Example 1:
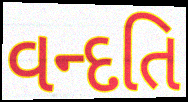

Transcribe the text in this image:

વન્દતિ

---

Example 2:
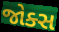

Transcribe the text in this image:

જોક્સ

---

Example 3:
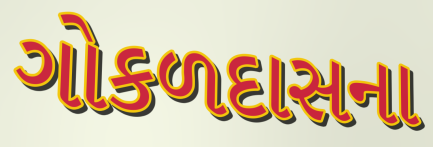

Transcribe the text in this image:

ગોકળદાસના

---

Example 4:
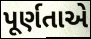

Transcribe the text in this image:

પૂર્ણતાએ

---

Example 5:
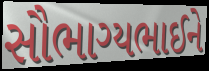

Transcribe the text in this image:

સૌભાગ્યભાઈને